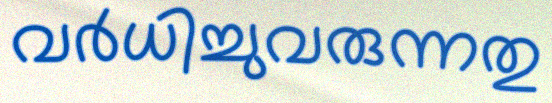
വർധിച്ചുവരുന്നതു